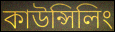
কাউন্সিলিং